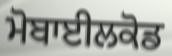
ਮੋਬਾਈਲਕੋਡ